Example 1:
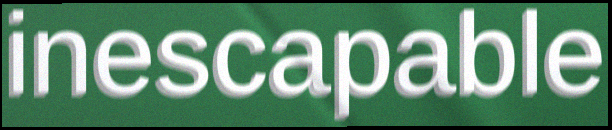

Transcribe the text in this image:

inescapable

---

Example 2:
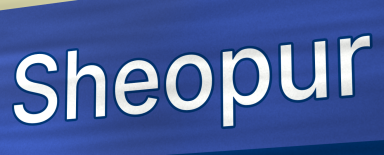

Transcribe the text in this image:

Sheopur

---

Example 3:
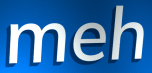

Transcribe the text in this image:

meh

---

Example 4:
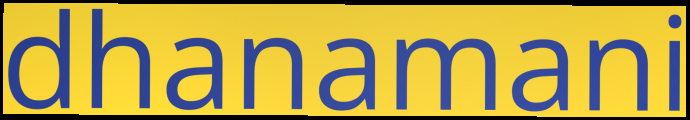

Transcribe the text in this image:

dhanamani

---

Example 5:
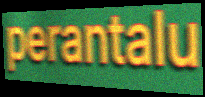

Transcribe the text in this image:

perantalu